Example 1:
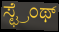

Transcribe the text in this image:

ಸ್ಟ್ರೆಂಥ್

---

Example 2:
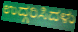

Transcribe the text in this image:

ಉದ್ಗರಿಸಿದಳು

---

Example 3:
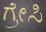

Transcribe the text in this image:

ಗ್ರೇಸಿ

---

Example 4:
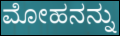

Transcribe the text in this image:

ಮೋಹನನ್ನು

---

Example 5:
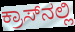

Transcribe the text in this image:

ಕ್ರಾಸ್‌ನಲ್ಲಿ